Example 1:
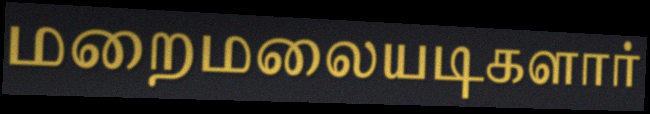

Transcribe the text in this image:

மறைமலையடிகளார்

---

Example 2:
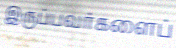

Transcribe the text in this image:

இருப்பவர்களைப்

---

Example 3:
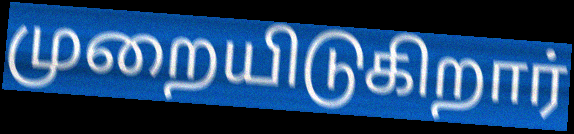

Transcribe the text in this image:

முறையிடுகிறார்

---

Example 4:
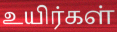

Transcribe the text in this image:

உயிர்கள்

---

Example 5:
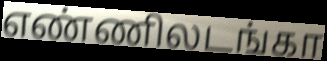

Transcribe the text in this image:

எண்ணிலடங்கா